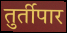
तुर्तीपार